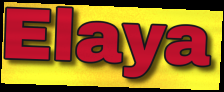
Elaya